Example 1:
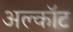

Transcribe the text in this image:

अल्कॉट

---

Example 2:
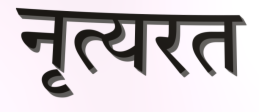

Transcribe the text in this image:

नृत्यरत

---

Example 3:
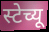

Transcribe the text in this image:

स्टेच्यू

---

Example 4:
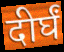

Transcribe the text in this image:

दीर्घं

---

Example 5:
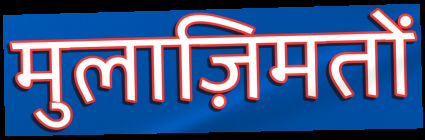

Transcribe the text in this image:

मुलाज़िमतों